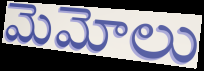
మెమోలు